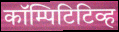
कॉम्पिटिटिव्ह